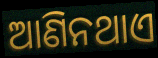
ଆଣିନଥାଏ